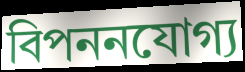
বিপননযোগ্য